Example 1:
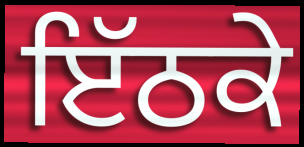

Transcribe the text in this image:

ਇੱਠਕੇ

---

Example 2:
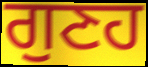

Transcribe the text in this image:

ਗੁਣਹ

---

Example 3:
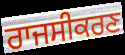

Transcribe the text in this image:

ਰਾਜਸੀਕਰਣ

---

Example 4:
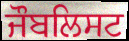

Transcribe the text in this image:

ਜੌਬਲਿਸਟ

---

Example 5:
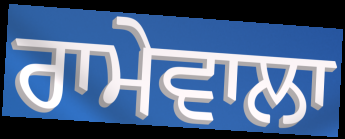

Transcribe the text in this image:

ਰਾਮੇਵਾਲਾ